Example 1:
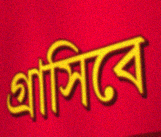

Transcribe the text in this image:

গ্রাসিবে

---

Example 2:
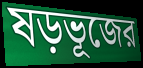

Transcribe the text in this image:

ষড়ভূজের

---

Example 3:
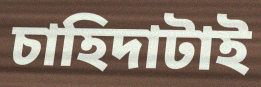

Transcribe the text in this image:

চাহিদাটাই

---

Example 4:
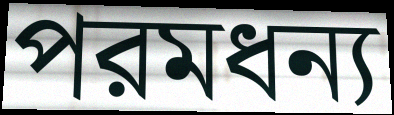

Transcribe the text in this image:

পরমধন্য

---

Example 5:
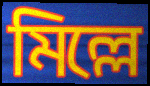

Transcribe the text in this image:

মিল্লে